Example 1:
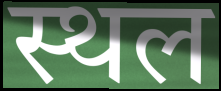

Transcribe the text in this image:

स्‍थल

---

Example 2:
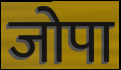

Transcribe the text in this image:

जोपा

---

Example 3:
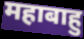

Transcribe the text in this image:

महाबाहु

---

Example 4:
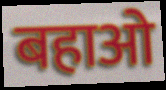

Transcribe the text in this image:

बहाओ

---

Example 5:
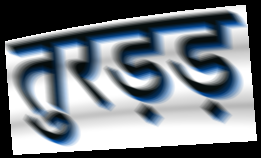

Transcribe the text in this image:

तुरड़ड़